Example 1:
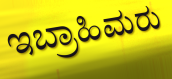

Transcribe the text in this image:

ಇಬ್ರಾಹಿಮರು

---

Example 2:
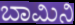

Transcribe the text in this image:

ಬಾಮಿನಿ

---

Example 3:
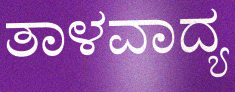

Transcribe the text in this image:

ತಾಳವಾದ್ಯ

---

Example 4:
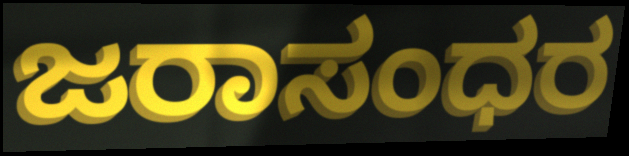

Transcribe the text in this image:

ಜರಾಸಂಧರ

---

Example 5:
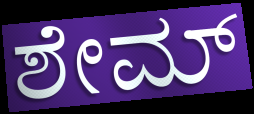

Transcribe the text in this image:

ಶೇಮ್